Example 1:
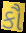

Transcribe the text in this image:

કૌ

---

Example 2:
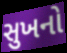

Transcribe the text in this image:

સુખનો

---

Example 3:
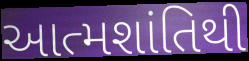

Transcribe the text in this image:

આત્મશાંતિથી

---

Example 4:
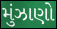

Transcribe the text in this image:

મુંઝાણો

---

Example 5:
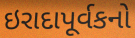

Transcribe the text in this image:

ઇરાદાપૂર્વકનો